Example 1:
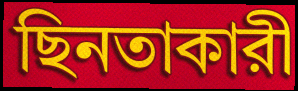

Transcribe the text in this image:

ছিনতাকারী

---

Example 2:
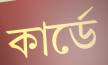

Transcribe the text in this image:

কার্ডে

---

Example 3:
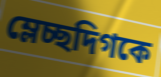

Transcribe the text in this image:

ম্লেচ্ছদিগকে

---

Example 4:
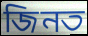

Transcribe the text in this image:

জিনত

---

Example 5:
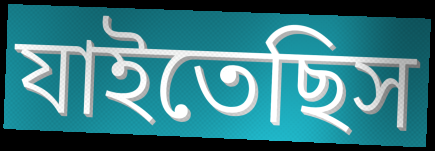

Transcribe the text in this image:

যাইতেছিস